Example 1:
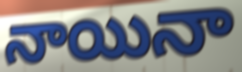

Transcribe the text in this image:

నాయినా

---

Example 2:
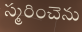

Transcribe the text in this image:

స్మరించెను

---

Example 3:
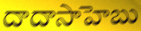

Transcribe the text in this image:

దాదాసాహెబు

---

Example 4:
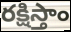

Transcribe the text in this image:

రక్షిస్తాం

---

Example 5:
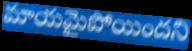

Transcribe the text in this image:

మాయమైపోయిందని